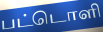
பட்டொளி